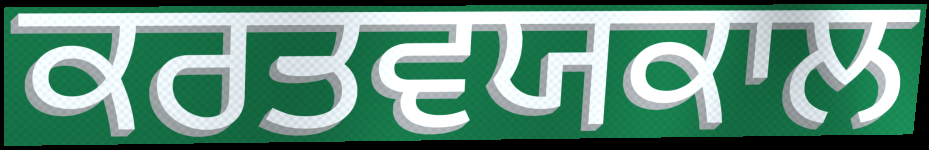
ਕਰਤਵਯਕਾਲ